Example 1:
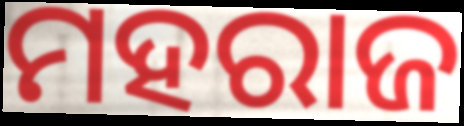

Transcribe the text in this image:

ମହରାଜ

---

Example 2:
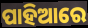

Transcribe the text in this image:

ପାହିଆରେ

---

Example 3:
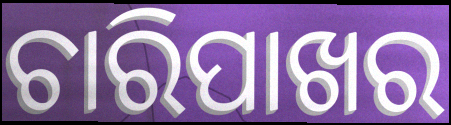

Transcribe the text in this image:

ଚାରିପାଖର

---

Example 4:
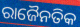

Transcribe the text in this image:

ରାଜୈନତିକ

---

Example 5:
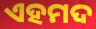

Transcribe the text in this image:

ଏହମଦ